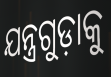
ଯନ୍ତ୍ରଗୁଡ଼ାକୁ